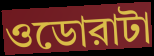
ওডোরাটা